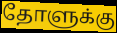
தோளுக்கு